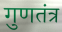
गुणतंत्र